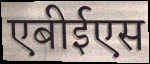
एबीईएस